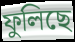
ফুলিছে